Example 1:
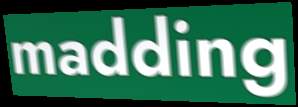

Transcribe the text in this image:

madding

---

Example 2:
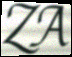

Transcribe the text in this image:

ZA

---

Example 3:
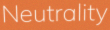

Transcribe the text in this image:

Neutrality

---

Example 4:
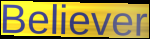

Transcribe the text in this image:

Believer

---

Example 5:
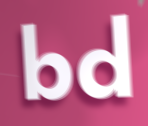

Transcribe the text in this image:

bd